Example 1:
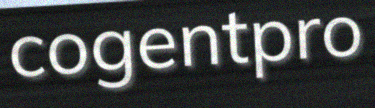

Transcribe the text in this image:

cogentpro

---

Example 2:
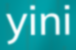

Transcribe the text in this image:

yini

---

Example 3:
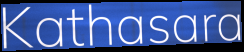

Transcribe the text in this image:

Kathasara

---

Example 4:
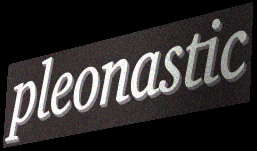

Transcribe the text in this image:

pleonastic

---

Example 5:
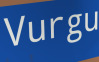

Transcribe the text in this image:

Vurgu